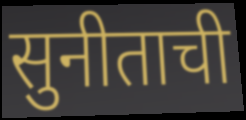
सुनीताची